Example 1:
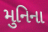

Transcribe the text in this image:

મુનિના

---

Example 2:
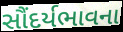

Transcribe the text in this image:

સૌંદર્યભાવના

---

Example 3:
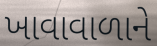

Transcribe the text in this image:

ખાવાવાળાને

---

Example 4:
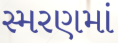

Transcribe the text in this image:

સ્મરણમાં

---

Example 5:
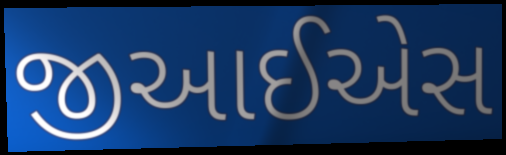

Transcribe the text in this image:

જીઆઈએસ